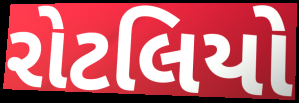
રોટલિયો